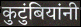
कुटुंबियांनी